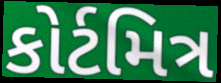
કોર્ટમિત્ર